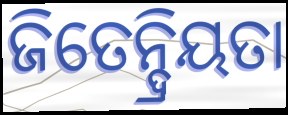
ଜିତେନ୍ଦ୍ରିୟତା